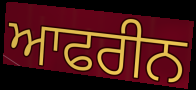
ਆਫਰੀਨ